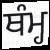
ਥੰਮ੍ਹ